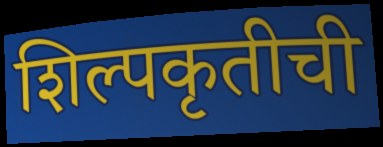
शिल्पकृतीची